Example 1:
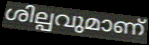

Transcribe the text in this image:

ശില്പവുമാണ്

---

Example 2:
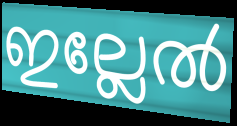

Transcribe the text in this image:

ഇല്ലേൽ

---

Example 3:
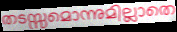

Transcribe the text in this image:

തടസ്സമൊന്നുമില്ലാതെ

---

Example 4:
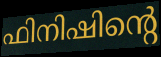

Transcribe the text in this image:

ഫിനിഷിന്റെ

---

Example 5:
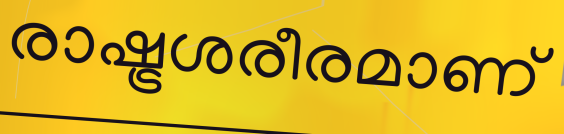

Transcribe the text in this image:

രാഷ്ട്രശരീരമാണ്